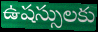
ఉషస్సులకు